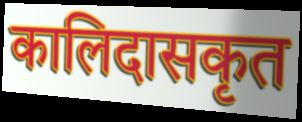
कालिदासकृत